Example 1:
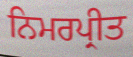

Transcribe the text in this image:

ਨਿਮਰਪ੍ਰੀਤ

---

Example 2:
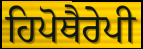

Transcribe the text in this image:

ਹਿਪੋਥੈਰੇਪੀ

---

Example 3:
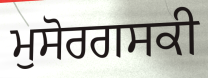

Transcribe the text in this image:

ਮੁਸੋਰਗਸਕੀ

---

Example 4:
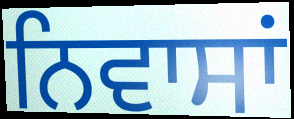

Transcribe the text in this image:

ਨਿਵਾਸਾਂ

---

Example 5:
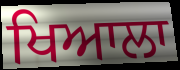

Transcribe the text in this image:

ਖਿਆਲਾ